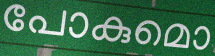
പോകുമൊ